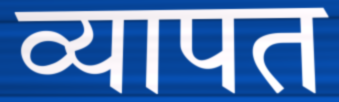
व्यापत